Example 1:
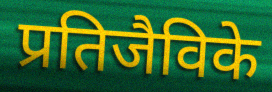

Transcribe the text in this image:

प्रतिजैविके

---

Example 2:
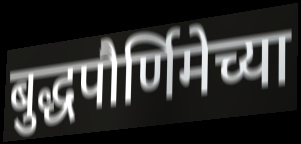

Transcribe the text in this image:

बुद्धपौर्णिमेच्या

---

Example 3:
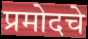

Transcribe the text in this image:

प्रमोदचे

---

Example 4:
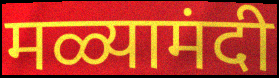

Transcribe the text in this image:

मळ्यामंदी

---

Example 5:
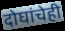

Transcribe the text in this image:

दोघांचेही